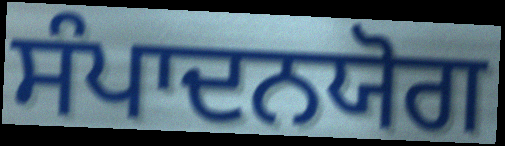
ਸੰਪਾਦਨਯੋਗ